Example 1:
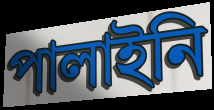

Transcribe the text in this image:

পালাইনি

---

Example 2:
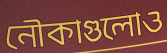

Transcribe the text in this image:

নৌকাগুলোও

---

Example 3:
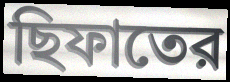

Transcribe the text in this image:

ছিফাতের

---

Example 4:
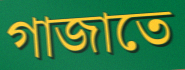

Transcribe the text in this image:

গাজাতে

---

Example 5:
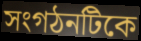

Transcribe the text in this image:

সংগঠনটিকে